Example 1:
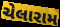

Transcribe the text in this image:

ચેલારામ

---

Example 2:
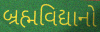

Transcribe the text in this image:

બ્રહ્મવિદ્યાનો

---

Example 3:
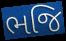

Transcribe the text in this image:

ભજિ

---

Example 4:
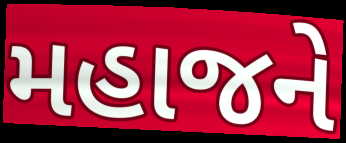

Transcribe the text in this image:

મહાજને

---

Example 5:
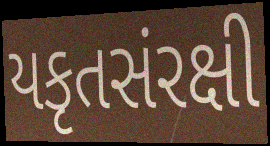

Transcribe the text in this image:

યકૃતસંરક્ષી